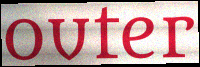
outer